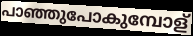
പാഞ്ഞുപോകുമ്പോള്